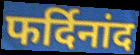
फर्दिनांद